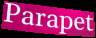
Parapet